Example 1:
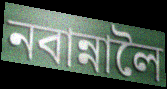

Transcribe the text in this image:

নবান্নালৈ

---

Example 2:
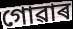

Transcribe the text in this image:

গোৱাৰ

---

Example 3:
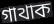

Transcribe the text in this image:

গাথাক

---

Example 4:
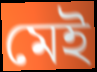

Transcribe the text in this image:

মেই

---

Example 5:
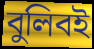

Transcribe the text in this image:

বুলিবই